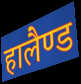
हालैण्ड